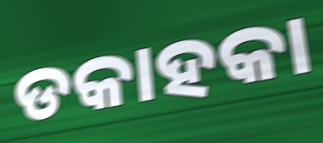
ଡକାହକା